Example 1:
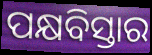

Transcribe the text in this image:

ପକ୍ଷବିସ୍ତାର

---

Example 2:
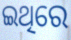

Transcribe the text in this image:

ଇଥିରେ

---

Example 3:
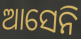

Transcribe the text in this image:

ଆସେନି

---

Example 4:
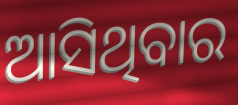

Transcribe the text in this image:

ଆସିଥିବାର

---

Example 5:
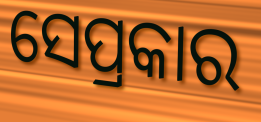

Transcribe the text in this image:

ସେପ୍ରକାର